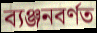
ব্যঞ্জনবৰ্ণত